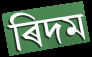
ৰিদম